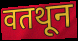
वतथून